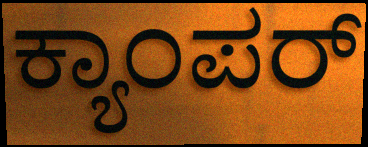
ಕ್ಯಾಂಪರ್